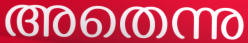
അതെന്നു